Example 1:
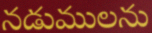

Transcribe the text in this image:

నడుములను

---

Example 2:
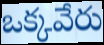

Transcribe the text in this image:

ఒక్కవేరు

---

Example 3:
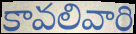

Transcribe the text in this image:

కావలివారి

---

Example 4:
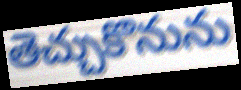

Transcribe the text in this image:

తెచ్చుకొనును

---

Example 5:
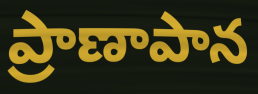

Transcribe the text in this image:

ప్రాణాపాన